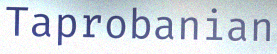
Taprobanian